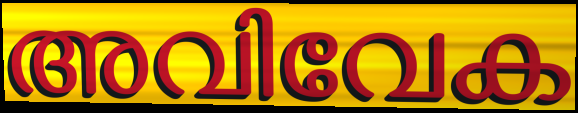
അവിവേക